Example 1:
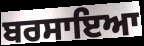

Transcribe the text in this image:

ਬਰਸਾਇਆ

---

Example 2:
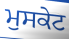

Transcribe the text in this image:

ਮੁਸਕੇਟ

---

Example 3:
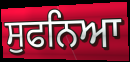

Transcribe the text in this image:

ਸੁਫਨਿਆ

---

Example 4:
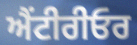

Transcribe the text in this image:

ਐਂਟੀਰੀਓਰ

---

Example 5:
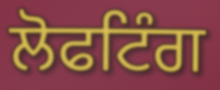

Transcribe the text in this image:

ਲੋਫਟਿੰਗ